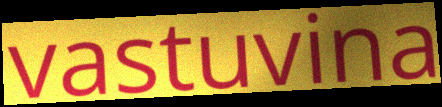
vastuvina